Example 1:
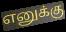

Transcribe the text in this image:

எனுக்கு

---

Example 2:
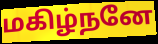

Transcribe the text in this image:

மகிழ்நனே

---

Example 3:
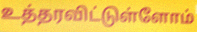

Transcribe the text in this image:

உத்தரவிட்டுள்ளோம்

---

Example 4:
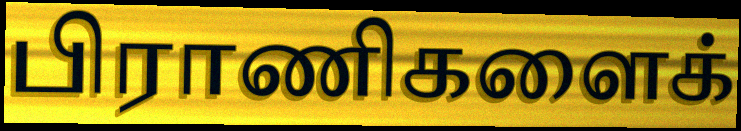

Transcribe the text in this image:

பிராணிகளைக்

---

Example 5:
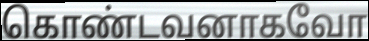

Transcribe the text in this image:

கொண்டவனாகவோ